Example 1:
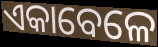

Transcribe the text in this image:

ଏକାବେଳେ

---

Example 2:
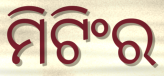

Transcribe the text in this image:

ମିଟିଂର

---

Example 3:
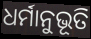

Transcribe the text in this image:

ଧର୍ମାନୁଭୂତି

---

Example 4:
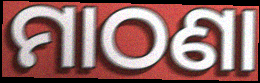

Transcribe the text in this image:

ମାଠଣା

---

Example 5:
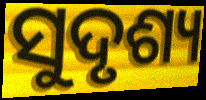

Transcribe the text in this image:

ସୁଦୃଶ୍ୟ